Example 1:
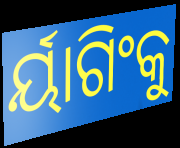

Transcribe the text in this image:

ର୍ୟାଗିଂକୁ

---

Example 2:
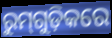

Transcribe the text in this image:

ରୁମ୍‌ଗୁଡ଼ିକରେ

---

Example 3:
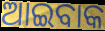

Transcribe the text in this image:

ଆଇବାକ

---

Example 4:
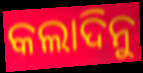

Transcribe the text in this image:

କଲାଦିନୁ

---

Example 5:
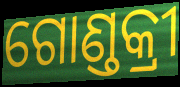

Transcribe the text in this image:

ଗୋଣ୍ଡକ୍ରୀ